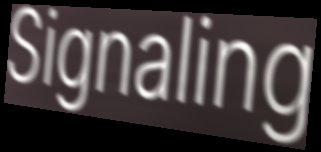
Signaling